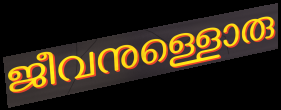
ജീവനുള്ളൊരു